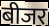
बीजर